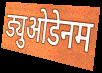
ड्युओडेनम